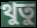
থুতু